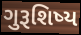
ગુરૂશિષ્ય